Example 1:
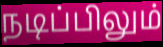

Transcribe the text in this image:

நடிப்பிலும்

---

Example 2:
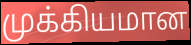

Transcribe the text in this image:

முக்கியமான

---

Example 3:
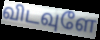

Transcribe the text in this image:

விடவுளே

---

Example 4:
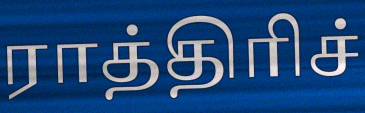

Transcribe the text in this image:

ராத்திரிச்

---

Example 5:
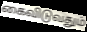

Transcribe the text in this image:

கைவிடுவதும்